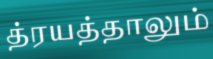
த்ரயத்தாலும்